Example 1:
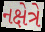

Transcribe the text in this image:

નક્ષેત્રે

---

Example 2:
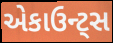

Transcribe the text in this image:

એકાઉન્ટ્સ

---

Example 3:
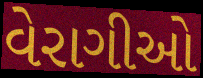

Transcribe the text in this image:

વેરાગીઓ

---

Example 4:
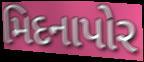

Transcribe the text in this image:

મિદનાપોર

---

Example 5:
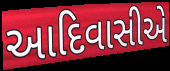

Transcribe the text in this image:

આદિવાસીએ